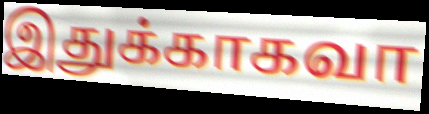
இதுக்காகவா